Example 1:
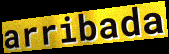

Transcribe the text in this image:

arribada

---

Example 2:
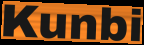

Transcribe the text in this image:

Kunbi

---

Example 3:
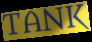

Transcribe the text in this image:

TANK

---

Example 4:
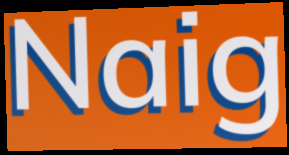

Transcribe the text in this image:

Naig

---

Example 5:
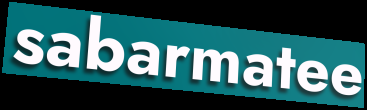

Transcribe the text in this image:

sabarmatee